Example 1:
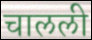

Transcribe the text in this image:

चालली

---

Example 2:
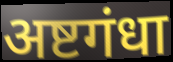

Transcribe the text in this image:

अष्टगंधा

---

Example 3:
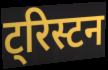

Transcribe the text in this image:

ट्रिस्टन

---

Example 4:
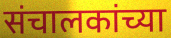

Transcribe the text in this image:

संचालकांच्या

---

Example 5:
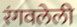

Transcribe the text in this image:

रंगवलेली